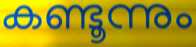
കണ്ടൂന്നും